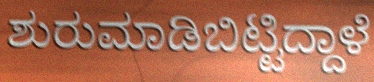
ಶುರುಮಾಡಿಬಿಟ್ಟಿದ್ದಾಳೆ